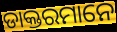
ଡାକ୍ତରମାନେ